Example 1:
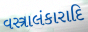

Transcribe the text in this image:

વસ્ત્રાલંકારાદિ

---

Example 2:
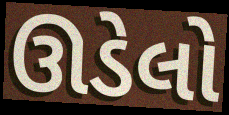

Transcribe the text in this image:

ઊડેલો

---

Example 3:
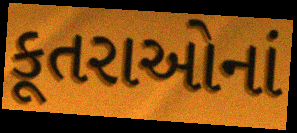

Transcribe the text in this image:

કૂતરાઓનાં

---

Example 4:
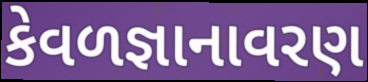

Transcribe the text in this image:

કેવળજ્ઞાનાવરણ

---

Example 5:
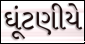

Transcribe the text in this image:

ઘૂંટણીયે